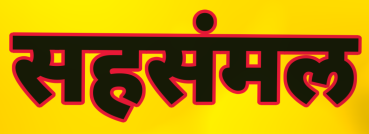
सहसंमल